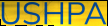
USHPA